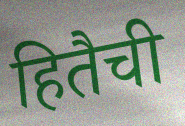
हितैची